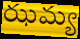
ఝమ్య